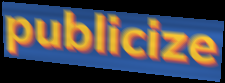
publicize